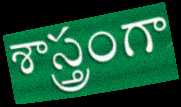
శాస్త్రంగా